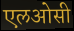
एलओसी